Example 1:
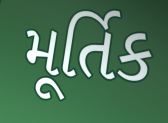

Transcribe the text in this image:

મૂર્તિક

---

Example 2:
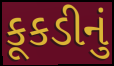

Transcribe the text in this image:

કૂકડીનું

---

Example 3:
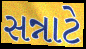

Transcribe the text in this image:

સન્નાટે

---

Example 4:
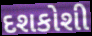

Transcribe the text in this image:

દશકોશી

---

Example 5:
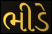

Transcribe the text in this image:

ભીડે